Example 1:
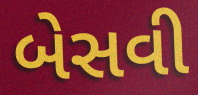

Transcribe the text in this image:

બેસવી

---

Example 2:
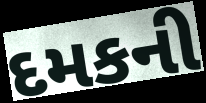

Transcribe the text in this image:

દમકની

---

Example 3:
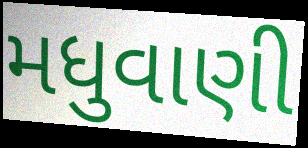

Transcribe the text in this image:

મધુવાણી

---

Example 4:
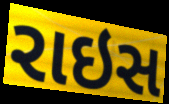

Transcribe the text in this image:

રાઇસ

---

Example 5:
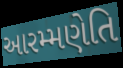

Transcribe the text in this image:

આરમ્મણેતિ